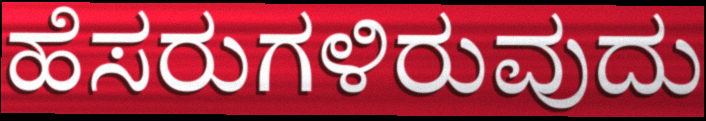
ಹೆಸರುಗಳಿರುವುದು